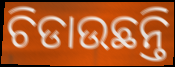
ଚିଡାଉଛନ୍ତି